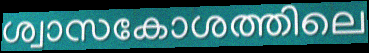
ശ്വാസകോശത്തിലെ